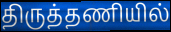
திருத்தணியில்